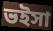
ভইসা